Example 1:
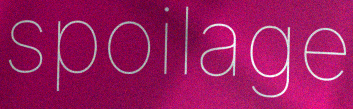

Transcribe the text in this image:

spoilage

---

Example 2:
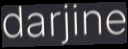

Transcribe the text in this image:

darjine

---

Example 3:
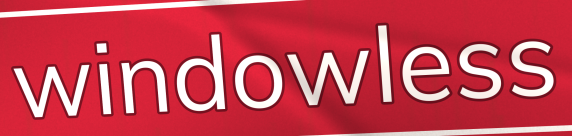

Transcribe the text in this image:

windowless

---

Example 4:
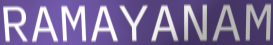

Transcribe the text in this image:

RAMAYANAM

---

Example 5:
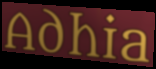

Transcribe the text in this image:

Adhia